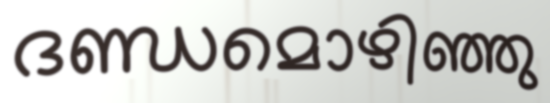
ദണ്ഡമൊഴിഞ്ഞു